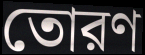
তোরণ